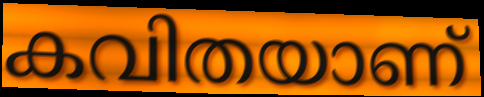
കവിതയാണ്